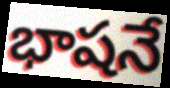
భాషనే